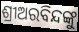
ଶ୍ରୀଅରବିନ୍ଦଙ୍କୁ